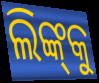
ଲିଙ୍କ୍‌କୁ